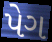
પેગ